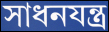
সাধনযন্ত্র